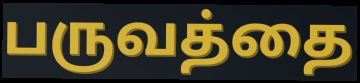
பருவத்தை